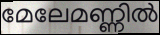
മേലേമണ്ണിൽ